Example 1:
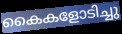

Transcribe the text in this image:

കൈകളോടിച്ചു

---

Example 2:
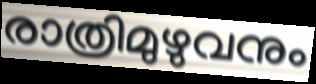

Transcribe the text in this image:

രാത്രിമുഴുവനും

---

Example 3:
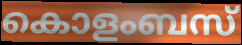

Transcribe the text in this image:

കൊളംബസ്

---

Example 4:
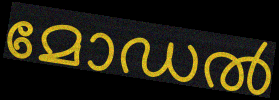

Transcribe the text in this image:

മോഡൽ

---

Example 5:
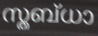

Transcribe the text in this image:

സ്തബ്ധാ